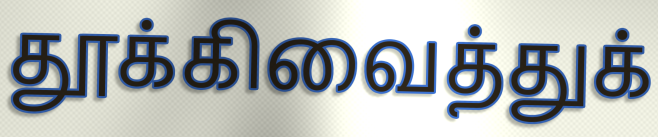
தூக்கிவைத்துக்